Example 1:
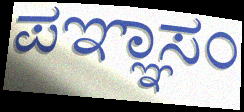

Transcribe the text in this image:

ಪಞ್ಞಾಸಂ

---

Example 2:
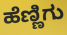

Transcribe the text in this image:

ಹೆಣ್ಣಿಗು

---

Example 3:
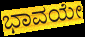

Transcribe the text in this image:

ಭಾವಯೇ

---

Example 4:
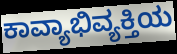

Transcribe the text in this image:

ಕಾವ್ಯಾಭಿವ್ಯಕ್ತಿಯ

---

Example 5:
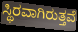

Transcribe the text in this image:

ಸ್ಥಿರವಾಗಿರುತ್ತವೆ